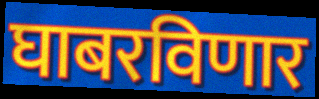
घाबरविणार